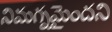
నిమగ్నమైందని